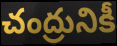
చంద్రునికీ